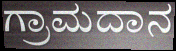
ಗ್ರಾಮದಾನ